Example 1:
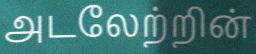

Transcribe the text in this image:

அடலேற்றின்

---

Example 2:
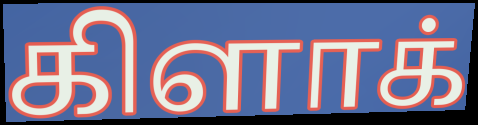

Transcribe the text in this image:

கிளாக்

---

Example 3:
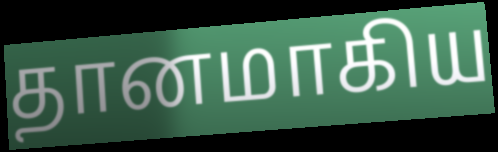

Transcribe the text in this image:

தானமாகிய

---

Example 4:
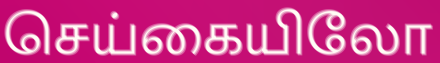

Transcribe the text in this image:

செய்கையிலோ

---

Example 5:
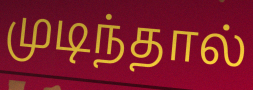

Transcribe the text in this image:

முடிந்தால்